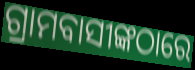
ଗ୍ରାମବାସୀଙ୍କଠାରେ